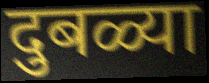
दुबळ्या